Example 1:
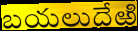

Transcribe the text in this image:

బయలుదేఱి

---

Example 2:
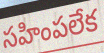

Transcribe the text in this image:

సహింపలేక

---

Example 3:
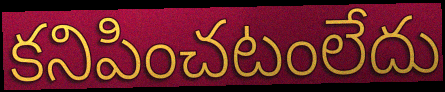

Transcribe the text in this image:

కనిపించటంలేదు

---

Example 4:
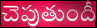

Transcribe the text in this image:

చెపుతుందీ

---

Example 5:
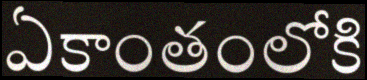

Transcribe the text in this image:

ఏకాంతంలోకి